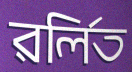
ৱৰ্লিত